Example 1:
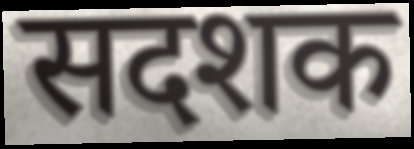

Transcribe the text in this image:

सदशक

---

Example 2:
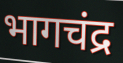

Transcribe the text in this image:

भागचंद्र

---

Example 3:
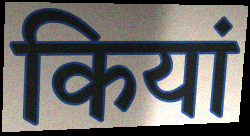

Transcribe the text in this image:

कियां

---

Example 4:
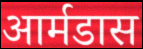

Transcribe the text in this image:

आर्मडास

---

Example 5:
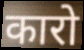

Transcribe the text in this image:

कारो